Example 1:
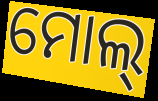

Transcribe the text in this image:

ମୋଲ୍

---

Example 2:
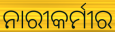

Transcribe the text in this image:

ନାରୀକର୍ମୀର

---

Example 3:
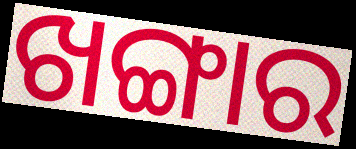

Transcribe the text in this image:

ଖଙ୍ଗାର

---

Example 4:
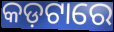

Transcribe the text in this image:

କଡ଼ଟାରେ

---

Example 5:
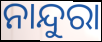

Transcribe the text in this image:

ନାନ୍ଦୁରା